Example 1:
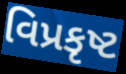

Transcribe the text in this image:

વિપ્રકૃષ્ટ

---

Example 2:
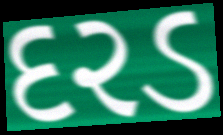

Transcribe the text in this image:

દરડ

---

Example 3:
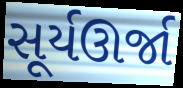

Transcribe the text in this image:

સૂર્યઊર્જા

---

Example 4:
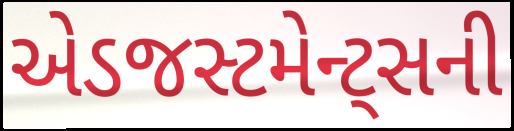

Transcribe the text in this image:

એડજસ્ટમેન્ટ્સની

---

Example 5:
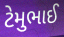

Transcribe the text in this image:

ટેમુભાઈ